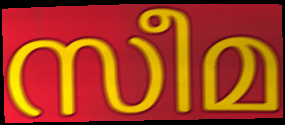
സീമ